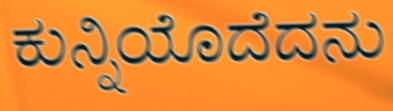
ಕುನ್ನಿಯೊದೆದನು